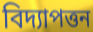
বিদ্যাপত্তন